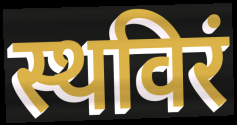
स्थविरं